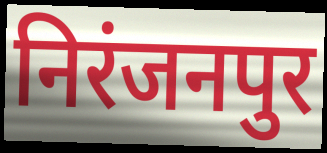
निरंजनपुर